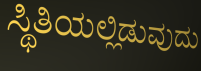
ಸ್ಥಿತಿಯಲ್ಲಿಡುವುದು